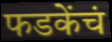
फडकेंचं